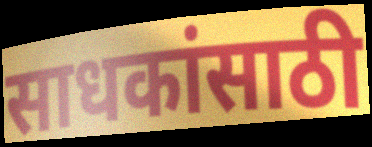
साधकांसाठी